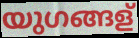
യുഗങ്ങള്